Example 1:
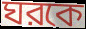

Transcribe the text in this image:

ঘরকে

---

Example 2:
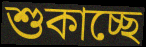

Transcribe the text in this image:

শুকাচ্ছে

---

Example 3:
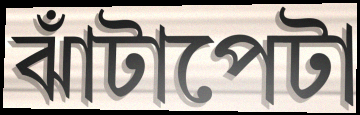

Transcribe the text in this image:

ঝাঁটাপেটা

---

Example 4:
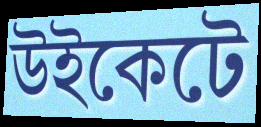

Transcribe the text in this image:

উইকেটে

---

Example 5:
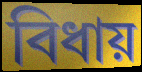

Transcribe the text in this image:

বিধায়